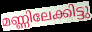
മണ്ണിലേക്കിട്ടു